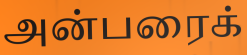
அன்பரைக்